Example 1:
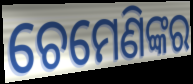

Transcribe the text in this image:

ଚେମେଣିଙ୍କର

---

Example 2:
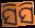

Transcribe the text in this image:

ସିସି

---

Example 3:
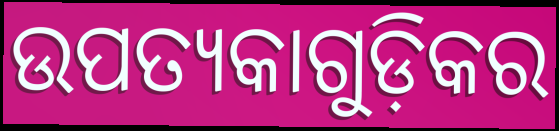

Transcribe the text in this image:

ଉପତ୍ୟକାଗୁଡ଼ିକର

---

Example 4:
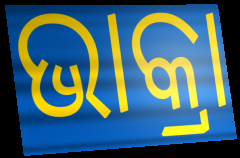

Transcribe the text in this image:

ଭାକ୍ରା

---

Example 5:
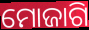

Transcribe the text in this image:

ମୋଜାଗି